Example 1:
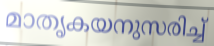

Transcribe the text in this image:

മാതൃകയനുസരിച്ച്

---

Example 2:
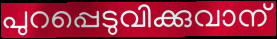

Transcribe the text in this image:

പുറപ്പെടുവിക്കുവാന്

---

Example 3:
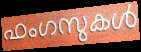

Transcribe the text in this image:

ഫംഗസുകൾ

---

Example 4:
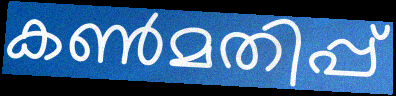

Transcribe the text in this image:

കൺമതിപ്പ്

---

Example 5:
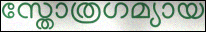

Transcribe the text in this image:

സ്തോത്രഗമ്യായ